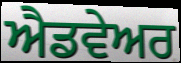
ਐਡਵੇਅਰ